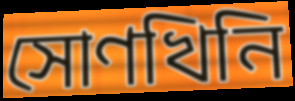
সোণখিনি